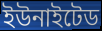
ইউনাইটেড